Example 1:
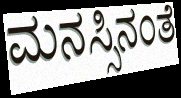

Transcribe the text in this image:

ಮನಸ್ಸಿನಂತೆ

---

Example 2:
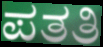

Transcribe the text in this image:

ಪತತಿ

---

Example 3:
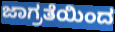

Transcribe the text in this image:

ಜಾಗ್ರತೆಯಿಂದ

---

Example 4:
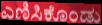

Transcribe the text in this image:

ಎಣಿಸಿಕೊಂಡು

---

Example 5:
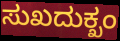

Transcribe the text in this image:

ಸುಖದುಕ್ಖಂ